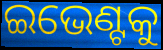
ଇଭେଣ୍ଟକୁ